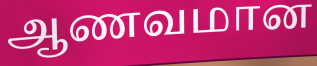
ஆணவமான